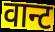
वान्ट